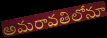
అమరావతిలోనూ